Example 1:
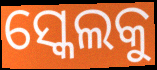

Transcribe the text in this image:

ସ୍କେଲକୁ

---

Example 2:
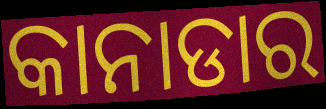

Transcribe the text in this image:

କାନାଡାର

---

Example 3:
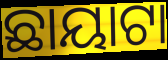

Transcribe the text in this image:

ଛାୟାଟା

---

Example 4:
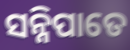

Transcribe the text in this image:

ସନ୍ନିପାତେ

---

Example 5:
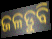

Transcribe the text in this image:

ଜଳଡୁବି